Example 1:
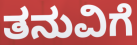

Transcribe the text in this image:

ತನುವಿಗೆ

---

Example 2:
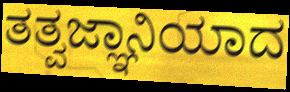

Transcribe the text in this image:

ತತ್ವಜ್ಞಾನಿಯಾದ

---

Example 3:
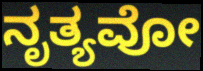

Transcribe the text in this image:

ನೃತ್ಯವೋ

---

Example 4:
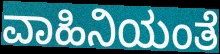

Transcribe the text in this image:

ವಾಹಿನಿಯಂತೆ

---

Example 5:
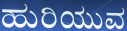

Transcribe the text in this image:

ಹುರಿಯುವ